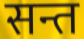
सन्त